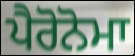
ਪੈਰੋਨੋਮਾ